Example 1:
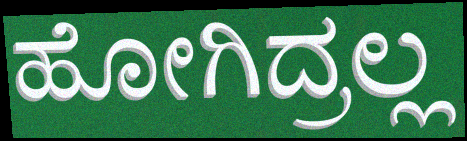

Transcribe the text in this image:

ಹೋಗಿದ್ರಲ್ಲ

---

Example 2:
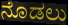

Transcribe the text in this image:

ನೊಡಲು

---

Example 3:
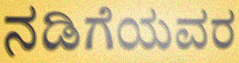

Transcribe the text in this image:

ನಡಿಗೆಯವರ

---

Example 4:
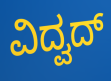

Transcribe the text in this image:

ವಿದ್ವದ್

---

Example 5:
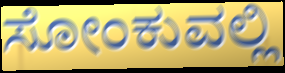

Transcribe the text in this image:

ಸೋಂಕುವಲ್ಲಿ